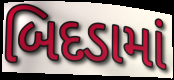
બિદડામાં